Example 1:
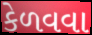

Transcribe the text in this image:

કેળવવા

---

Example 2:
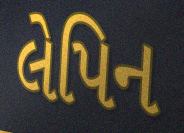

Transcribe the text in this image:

લેપિન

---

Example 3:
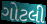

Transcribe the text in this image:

ગોટલી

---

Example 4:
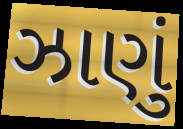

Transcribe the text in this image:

ઝાણું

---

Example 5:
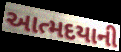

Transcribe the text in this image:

આત્મદયાની